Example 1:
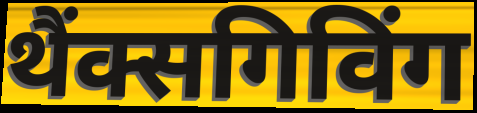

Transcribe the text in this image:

थैंक्सगिविंग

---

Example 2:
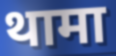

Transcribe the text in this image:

थामा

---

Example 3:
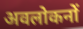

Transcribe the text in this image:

अवलोकनों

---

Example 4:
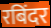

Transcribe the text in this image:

रबिंदर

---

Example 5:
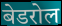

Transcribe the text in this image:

बेडरोल